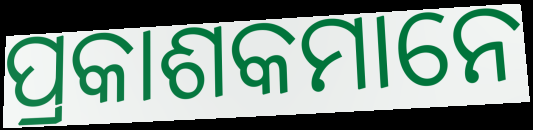
ପ୍ରକାଶକମାନେ